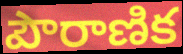
పౌరాణిక